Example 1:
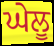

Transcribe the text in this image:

ਘੇਲੂ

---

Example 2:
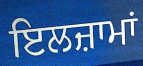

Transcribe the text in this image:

ਇਲਜ਼ਾਮਾਂ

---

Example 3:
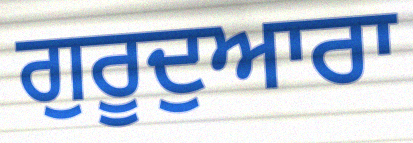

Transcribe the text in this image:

ਗੁਰੂਦੁਆਰਾ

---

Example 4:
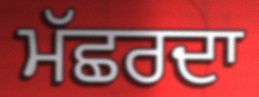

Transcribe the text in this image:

ਮੱਛਰਦਾ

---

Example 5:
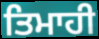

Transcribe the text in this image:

ਤਿਮਾਹੀ